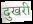
दुखरी